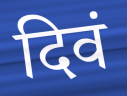
दिवं